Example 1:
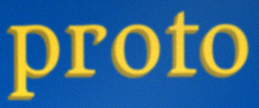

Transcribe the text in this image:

proto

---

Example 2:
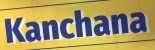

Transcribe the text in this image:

Kanchana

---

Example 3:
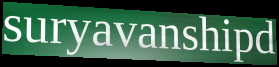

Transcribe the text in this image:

suryavanshipd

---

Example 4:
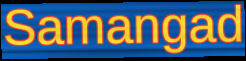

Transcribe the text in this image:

Samangad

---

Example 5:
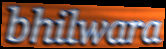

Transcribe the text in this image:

bhilwara